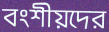
বংশীয়দের